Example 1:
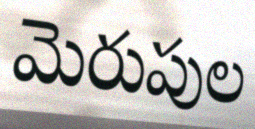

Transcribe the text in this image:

మెరుపుల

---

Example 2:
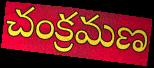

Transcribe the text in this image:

చంక్రమణ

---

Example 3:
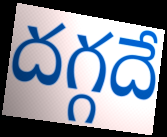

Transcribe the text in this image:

దగ్గదే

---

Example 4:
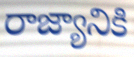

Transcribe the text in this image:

రాజ్యానికి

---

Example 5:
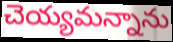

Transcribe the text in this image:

చెయ్యమన్నాను